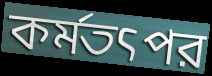
কর্মতৎপর